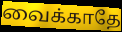
வைக்காதே